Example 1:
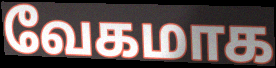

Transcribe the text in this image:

வேகமாக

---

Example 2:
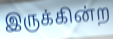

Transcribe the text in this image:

இருக்கின்ற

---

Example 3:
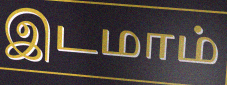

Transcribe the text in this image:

இடமாம்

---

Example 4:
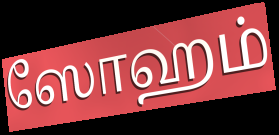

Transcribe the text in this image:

ஸோஹம்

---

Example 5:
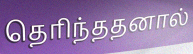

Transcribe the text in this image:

தெரிந்ததனால்